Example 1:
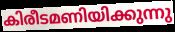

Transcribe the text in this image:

കിരീടമണിയിക്കുന്നു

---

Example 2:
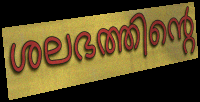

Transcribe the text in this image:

ശലഭത്തിന്റെ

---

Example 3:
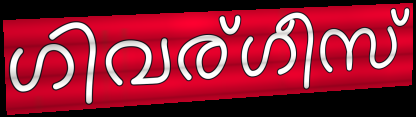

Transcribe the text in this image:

ഗിവര്ഗീസ്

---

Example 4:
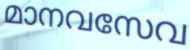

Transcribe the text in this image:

മാനവസേവ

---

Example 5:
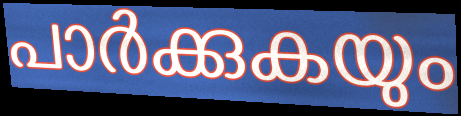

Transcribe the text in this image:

പാർക്കുകയും